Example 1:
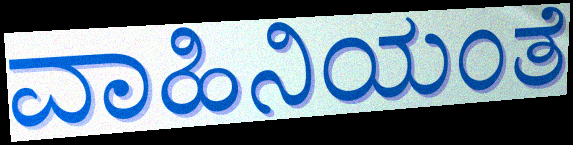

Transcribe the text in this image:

ವಾಹಿನಿಯಂತೆ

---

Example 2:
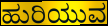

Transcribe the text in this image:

ಹುರಿಯುವ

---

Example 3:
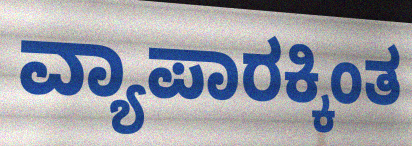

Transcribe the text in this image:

ವ್ಯಾಪಾರಕ್ಕಿಂತ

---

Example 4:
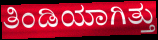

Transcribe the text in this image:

ತಿಂಡಿಯಾಗಿತ್ತು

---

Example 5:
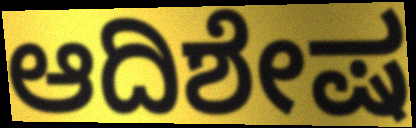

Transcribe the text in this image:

ಆದಿಶೇಷ